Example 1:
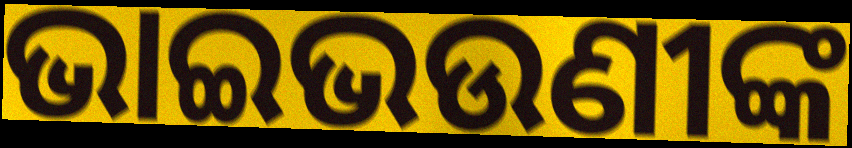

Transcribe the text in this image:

ଭାଇଭଉଣୀଙ୍କ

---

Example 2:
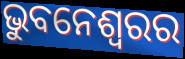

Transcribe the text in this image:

ଭୁବନେଶ୍ୱରର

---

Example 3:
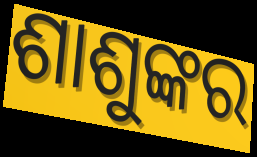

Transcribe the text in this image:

ଶାଶୁଙ୍କର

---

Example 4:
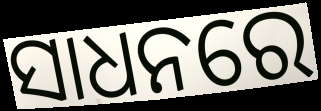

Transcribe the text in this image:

ସାଧନରେ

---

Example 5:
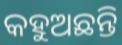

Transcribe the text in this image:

କହୁଅଛନ୍ତି